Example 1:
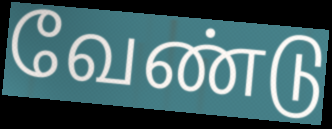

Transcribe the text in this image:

வேண்டு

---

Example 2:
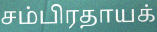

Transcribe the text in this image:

சம்பிரதாயக்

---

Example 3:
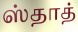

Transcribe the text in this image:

ஸ்தாத்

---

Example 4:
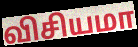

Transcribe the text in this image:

விசியமா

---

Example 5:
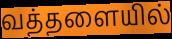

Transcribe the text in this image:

வத்தளையில்